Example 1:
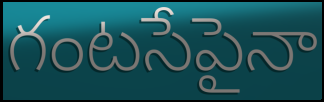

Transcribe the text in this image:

గంటసేపైనా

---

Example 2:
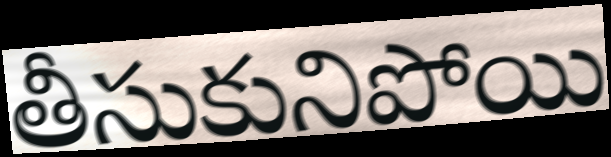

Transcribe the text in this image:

తీసుకునిపోయి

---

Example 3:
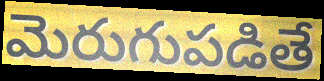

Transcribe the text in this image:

మెరుగుపడితే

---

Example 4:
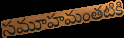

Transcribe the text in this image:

సమూహమంతటికి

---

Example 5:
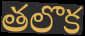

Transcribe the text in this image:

తలొక